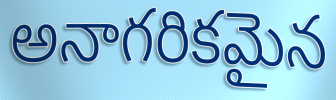
అనాగరికమైన